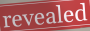
revealed